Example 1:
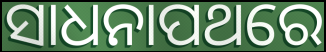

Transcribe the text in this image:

ସାଧନାପଥରେ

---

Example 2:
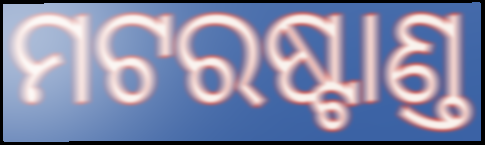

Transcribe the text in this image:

ମଟରଷ୍ଟାଣ୍ଡ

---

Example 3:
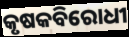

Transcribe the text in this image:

କୃଷକବିରୋଧୀ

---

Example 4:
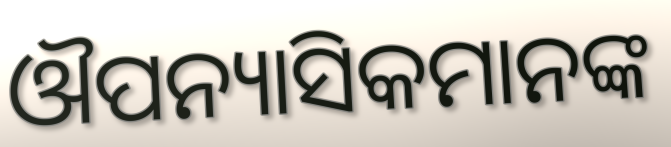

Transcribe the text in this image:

ଔପନ୍ୟାସିକମାନଙ୍କ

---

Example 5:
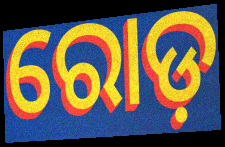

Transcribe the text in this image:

ରୋଡ଼